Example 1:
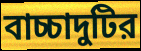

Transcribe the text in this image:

বাচ্চাদুটির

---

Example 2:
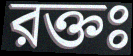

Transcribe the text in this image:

রক্তঃ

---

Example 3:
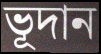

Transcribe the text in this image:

ভূদান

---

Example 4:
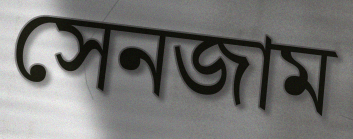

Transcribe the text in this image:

সেনজাম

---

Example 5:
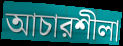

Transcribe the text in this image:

আচারশীলা